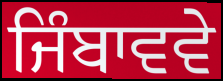
ਜਿੰਬਾਵਵੇ